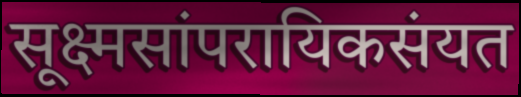
सूक्ष्मसांपरायिकसंयत